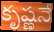
కృష్ణనే